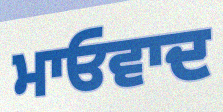
ਮਾਓਵਾਦ